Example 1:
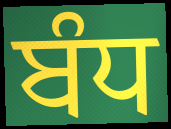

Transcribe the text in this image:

ਬੰਧ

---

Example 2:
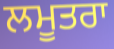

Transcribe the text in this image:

ਲਮੂਤਰਾ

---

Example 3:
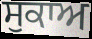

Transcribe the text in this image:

ਸੁਕਾਅ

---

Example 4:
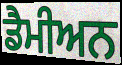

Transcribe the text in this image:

ਡੈਮੀਅਨ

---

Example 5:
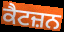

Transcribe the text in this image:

ਕੈਟਜ਼ਨ